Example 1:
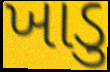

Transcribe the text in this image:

ખાડુ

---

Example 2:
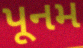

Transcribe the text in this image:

પૂનમ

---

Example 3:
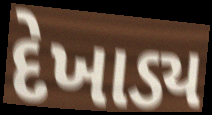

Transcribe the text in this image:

દેખાડ્ય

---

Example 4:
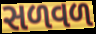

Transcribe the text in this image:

સળવળ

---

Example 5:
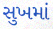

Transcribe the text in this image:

સુખમાં